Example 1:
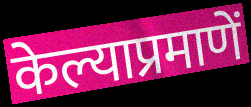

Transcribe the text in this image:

केल्याप्रमाणें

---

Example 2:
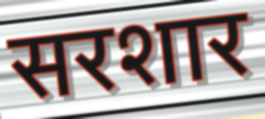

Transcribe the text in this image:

सरशार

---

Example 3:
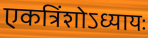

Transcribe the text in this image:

एकत्रिंशोऽध्यायः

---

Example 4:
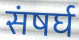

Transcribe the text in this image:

संषर्घ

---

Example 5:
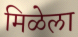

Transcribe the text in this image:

मिळेला